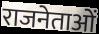
राजनेताओं